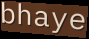
bhaye